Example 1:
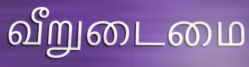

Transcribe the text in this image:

வீறுடைமை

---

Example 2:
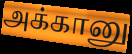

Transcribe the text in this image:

அக்கானு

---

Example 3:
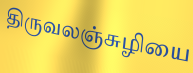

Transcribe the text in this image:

திருவலஞ்சுழியை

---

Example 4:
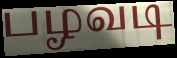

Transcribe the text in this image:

பழவடி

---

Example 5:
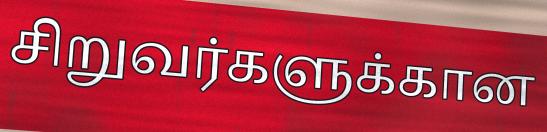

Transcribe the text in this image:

சிறுவர்களுக்கான